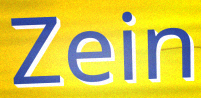
Zein